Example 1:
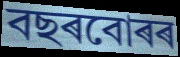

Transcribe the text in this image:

বছৰবোৰৰ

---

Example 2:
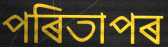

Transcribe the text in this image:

পৰিতাপৰ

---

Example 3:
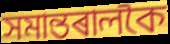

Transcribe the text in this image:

সমান্তৰালকৈ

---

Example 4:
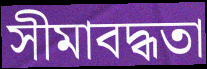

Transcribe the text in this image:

সীমাবদ্ধতা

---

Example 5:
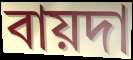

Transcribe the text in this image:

বায়দা